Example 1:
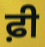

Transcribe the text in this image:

ਫ਼ੀ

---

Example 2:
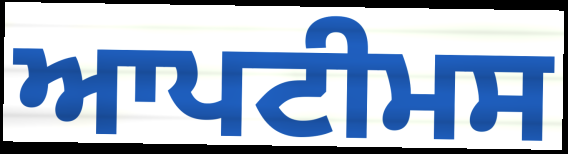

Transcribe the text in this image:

ਆਪਟੀਮਸ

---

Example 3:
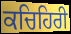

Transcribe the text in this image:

ਕਚਿਹਿਰੀ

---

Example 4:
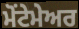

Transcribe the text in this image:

ਮੋਂਟੇਮੇਅਰ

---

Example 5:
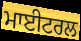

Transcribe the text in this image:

ਮਾਈਟਰਲ